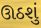
ઊઠશું